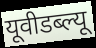
यूवीडब्ल्यू